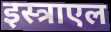
इस्त्राएल